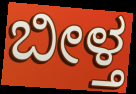
ಬೀಳ್ತ